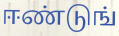
ஈண்டுங்